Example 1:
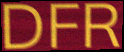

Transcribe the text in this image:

DFR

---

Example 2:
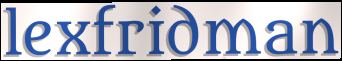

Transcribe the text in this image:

lexfridman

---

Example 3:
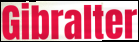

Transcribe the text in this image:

Gibralter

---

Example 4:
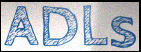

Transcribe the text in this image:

ADLs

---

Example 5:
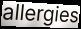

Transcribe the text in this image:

allergies